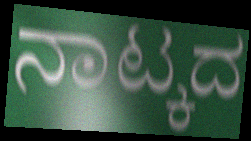
ನಾಟ್ಕದ